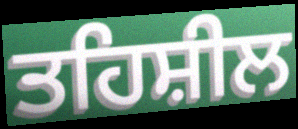
ਤਹਿਸ਼ੀਲ